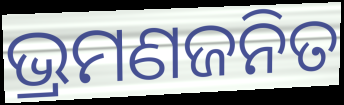
ଭ୍ରମଣଜନିତ